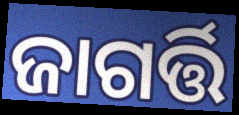
ଜାଗର୍ତ୍ତି